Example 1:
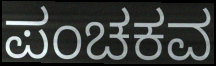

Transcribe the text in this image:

ಪಂಚಕವ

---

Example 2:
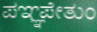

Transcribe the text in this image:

ಪಞ್ಞಪೇತುಂ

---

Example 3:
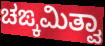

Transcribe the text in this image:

ಚಙ್ಕಮಿತ್ವಾ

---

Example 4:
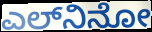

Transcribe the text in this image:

ಎಲ್‍ನಿನೋ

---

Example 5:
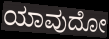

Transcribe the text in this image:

ಯಾವುದೋ